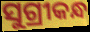
ସୁଗ୍ରୀକନ୍ଧ